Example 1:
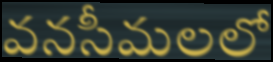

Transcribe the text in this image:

వనసీమలలో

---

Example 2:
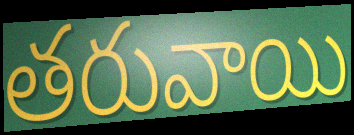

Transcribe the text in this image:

తరువాయి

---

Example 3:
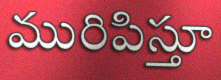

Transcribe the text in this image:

మురిపిస్తూ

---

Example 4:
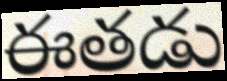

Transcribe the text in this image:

ఈతడు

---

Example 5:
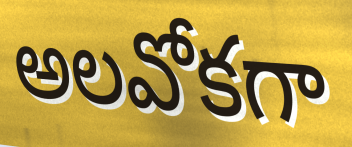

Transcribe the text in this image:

అలవోకగా